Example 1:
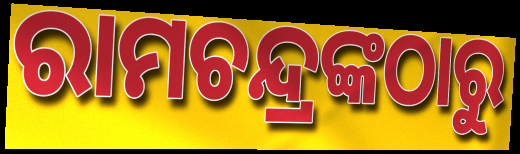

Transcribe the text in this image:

ରାମଚନ୍ଦ୍ରଙ୍କଠାରୁ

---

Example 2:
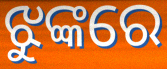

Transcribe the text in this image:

ଝୁଙ୍କରେ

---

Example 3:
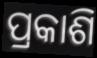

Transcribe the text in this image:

ପ୍ରକାଶି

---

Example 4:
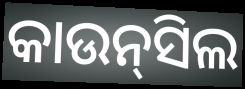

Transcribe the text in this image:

କାଉନ୍‍ସିଲ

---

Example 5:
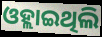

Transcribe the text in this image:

ଓହ୍ଲାଇଥିଲି